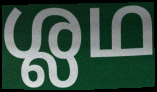
ശ്ലഥ